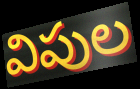
విపుల